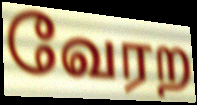
வேரற